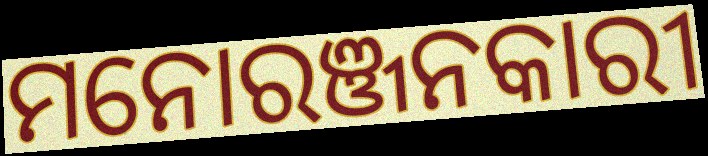
ମନୋରଞ୍ଜନକାରୀ